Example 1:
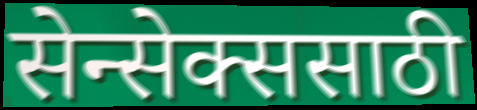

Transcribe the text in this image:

सेन्सेक्ससाठी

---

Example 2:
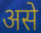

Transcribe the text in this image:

असे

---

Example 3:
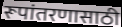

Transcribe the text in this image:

रूपांतरणासाठी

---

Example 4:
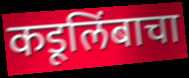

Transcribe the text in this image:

कडूलिंबाचा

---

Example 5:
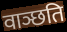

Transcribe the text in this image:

वाञ्छति